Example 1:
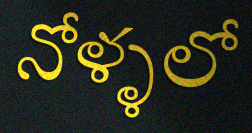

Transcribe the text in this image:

నోళ్ళలో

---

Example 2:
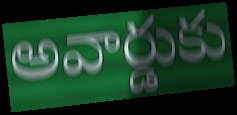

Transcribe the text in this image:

అవార్డుకు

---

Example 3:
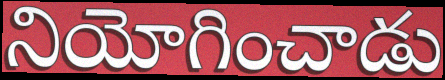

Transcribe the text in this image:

నియోగించాడు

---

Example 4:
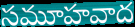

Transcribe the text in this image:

సమూహవాద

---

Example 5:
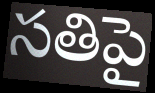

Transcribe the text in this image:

సతిపై